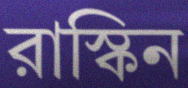
রাস্কিন